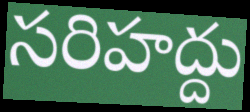
సరిహద్దు